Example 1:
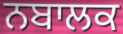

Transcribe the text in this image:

ਨਬਾਲਕ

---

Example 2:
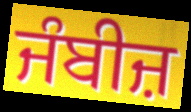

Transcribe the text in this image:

ਜੰਬੀਜ਼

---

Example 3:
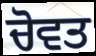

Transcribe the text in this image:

ਚੋਵਤ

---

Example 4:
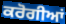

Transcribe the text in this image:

ਕਰੋਗੀਆਂ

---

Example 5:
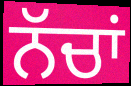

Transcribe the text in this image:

ਨੱਚਾਂ